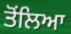
ਤੋਂਲਿਆ